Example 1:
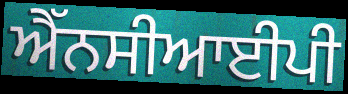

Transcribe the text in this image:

ਐੱਨਸੀਆਈਪੀ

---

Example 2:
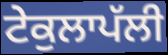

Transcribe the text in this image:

ਟੇਕੁਲਾਪੱਲੀ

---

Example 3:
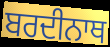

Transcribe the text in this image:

ਬਰਦੀਨਾਥ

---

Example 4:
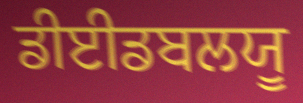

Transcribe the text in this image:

ਡੀਈਡਬਲਯੂ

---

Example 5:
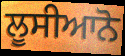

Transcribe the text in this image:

ਲੂਸੀਆਨੋ